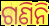
ଗଣିନି